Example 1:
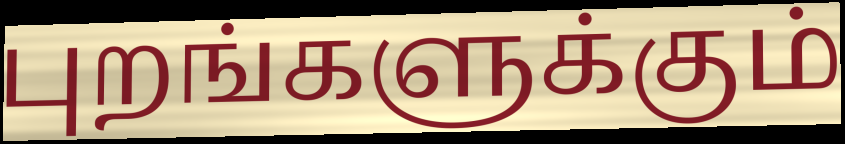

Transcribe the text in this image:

புறங்களுக்கும்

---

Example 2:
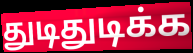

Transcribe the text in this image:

துடிதுடிக்க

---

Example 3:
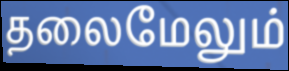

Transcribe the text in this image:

தலைமேலும்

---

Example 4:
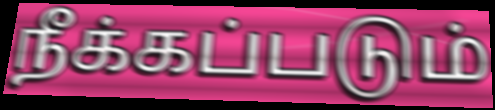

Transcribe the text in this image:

நீக்கப்படும்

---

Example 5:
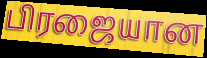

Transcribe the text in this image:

பிரஜையான